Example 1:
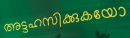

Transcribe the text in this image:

അട്ടഹസിക്കുകയോ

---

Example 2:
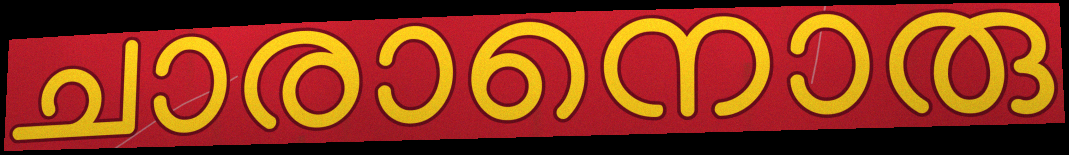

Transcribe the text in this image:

ചാരാനൊരു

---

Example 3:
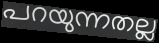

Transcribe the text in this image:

പറയുന്നതല്ല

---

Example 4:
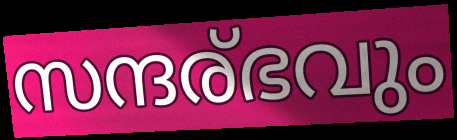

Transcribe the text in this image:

സന്ദര്ഭവും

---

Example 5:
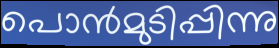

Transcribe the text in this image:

പൊൻമുടിപ്പിന്നു